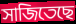
সাজিতেছে